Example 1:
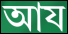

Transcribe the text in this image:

আয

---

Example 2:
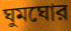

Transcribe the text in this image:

ঘুমঘোর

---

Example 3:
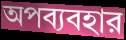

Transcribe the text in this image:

অপব্যবহার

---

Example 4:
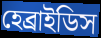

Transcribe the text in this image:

হেব্রাইডিস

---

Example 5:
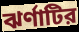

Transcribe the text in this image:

ঝর্ণাটির